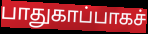
பாதுகாப்பாகச்